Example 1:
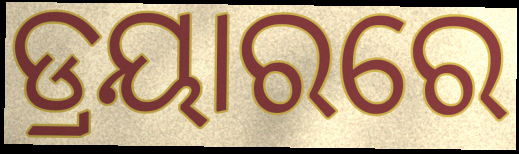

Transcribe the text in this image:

ଡ୍ରୟାରରେ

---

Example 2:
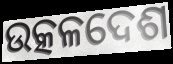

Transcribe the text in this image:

ଉତ୍କଳଦେଶ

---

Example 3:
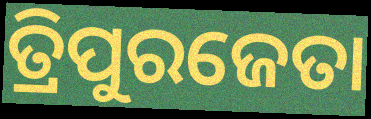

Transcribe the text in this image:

ତ୍ରିପୁରଜେତା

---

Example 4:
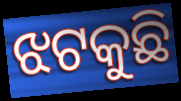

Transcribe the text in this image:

ଝଟକୁଛି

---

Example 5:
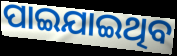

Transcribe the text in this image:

ପାଇଯାଇଥିବ